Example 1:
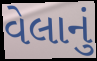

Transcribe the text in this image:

વેલાનું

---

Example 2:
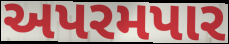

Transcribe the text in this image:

અપરમપાર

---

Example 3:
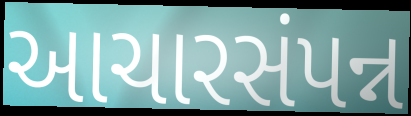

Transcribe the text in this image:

આચારસંપન્ન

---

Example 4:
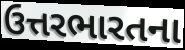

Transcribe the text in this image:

ઉત્તરભારતના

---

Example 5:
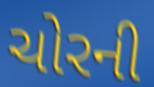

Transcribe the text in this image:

ચોરની